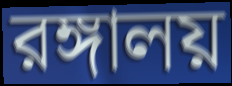
রঙ্গালয়